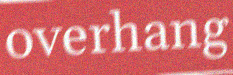
overhang